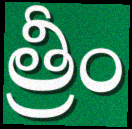
త్రీం